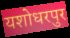
यशोधरपुर